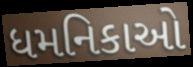
ધમનિકાઓ